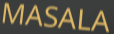
MASALA